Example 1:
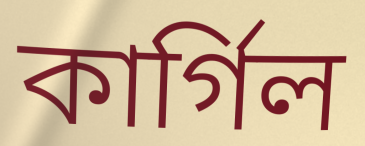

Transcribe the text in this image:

কার্গিল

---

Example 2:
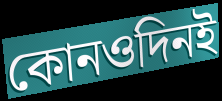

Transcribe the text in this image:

কোনওদিনই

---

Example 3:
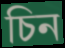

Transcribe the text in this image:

চিন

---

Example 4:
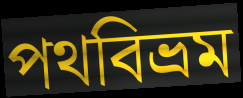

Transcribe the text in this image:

পথবিভ্রম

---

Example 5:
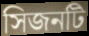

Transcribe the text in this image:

সিজনটি